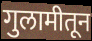
गुलामीतून